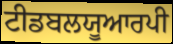
ਟੀਡਬਲਯੂਆਰਪੀ